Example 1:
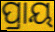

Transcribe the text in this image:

ପ୍ରାୟ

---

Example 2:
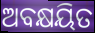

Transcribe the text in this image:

ଅବକ୍ଷୟିତ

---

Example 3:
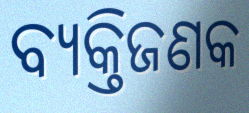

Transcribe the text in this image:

ବ୍ୟକ୍ତିଜଣକ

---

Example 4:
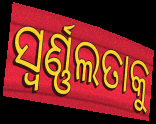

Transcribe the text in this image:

ସ୍ଵର୍ଣ୍ଣଲତାକୁ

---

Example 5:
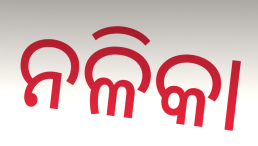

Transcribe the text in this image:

ନଳିକା